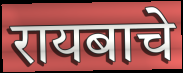
रायबाचे